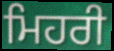
ਮਿਹਰੀ